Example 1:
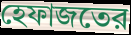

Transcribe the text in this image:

হেফাজতের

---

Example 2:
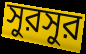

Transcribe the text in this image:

সুরসুর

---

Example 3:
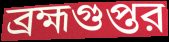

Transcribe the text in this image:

ব্রহ্মগুপ্তর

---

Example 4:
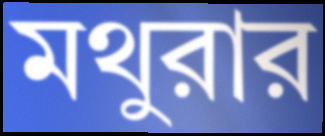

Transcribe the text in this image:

মথুরার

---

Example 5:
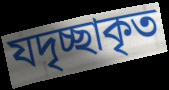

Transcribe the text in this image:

যদৃচ্ছাকৃত